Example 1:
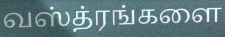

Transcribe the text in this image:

வஸ்த்ரங்களை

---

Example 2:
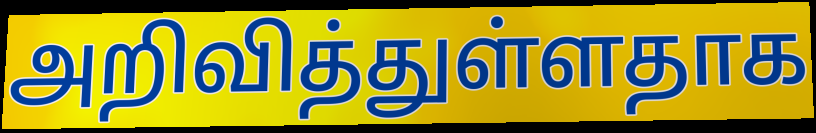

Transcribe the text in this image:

அறிவித்துள்ளதாக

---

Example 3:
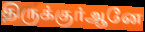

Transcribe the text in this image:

திருக்குர்ஆனே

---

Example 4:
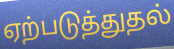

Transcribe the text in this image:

ஏற்படுத்துதல்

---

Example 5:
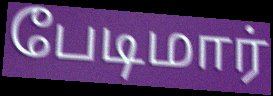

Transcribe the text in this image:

பேடிமார்